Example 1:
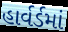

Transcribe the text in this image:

હાર્વર્ડમાં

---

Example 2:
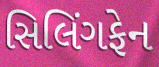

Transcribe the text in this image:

સિલિંગફેન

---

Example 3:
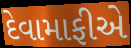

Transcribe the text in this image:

દેવામાફીએ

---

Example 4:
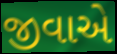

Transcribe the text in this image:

જીવાએ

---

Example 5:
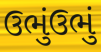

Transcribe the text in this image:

ઉભુંઉભું